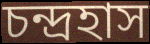
চন্দ্রহাস